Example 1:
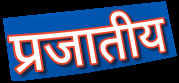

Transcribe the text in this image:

प्रजातीय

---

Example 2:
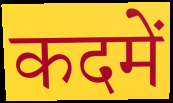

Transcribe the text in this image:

कदमें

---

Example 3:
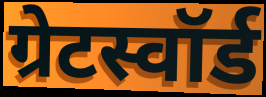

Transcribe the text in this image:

ग्रेटस्वॉर्ड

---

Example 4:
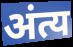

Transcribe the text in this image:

अंत्य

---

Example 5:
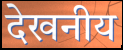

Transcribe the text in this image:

देखनीय